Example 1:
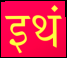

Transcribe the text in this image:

इथं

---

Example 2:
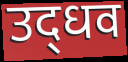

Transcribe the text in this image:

उद्धव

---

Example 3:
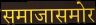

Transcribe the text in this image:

समाजासमोर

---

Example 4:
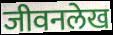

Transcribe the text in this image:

जीवनलेख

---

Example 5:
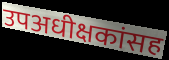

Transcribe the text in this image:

उपअधीक्षकांसह